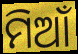
ମିଆଁ